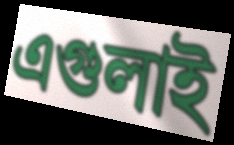
এগুলাই